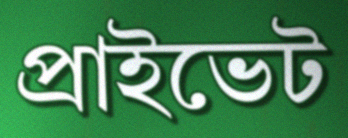
প্রাইভেট